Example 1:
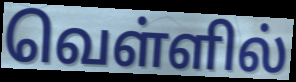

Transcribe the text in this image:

வெள்ளில்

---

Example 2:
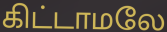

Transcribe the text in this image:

கிட்டாமலே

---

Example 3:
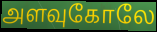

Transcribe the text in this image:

அளவுகோலே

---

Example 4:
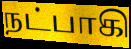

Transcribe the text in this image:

நட்பாகி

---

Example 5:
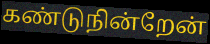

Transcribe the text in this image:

கண்டுநின்றேன்